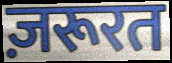
ज़रूरत